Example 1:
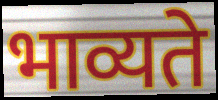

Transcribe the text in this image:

भाव्यते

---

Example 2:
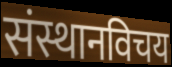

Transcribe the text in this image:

संस्थानविचय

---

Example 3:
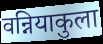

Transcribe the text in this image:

वन्नियाकुला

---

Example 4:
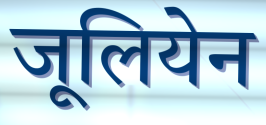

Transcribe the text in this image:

जूलियेन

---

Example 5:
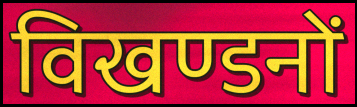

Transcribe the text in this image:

विखण्डनों